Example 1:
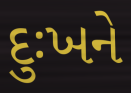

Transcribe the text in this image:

દુઃખને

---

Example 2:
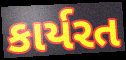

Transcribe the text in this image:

કાર્યરત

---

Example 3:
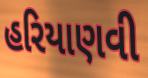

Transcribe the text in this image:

હરિયાણવી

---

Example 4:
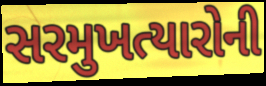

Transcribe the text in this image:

સરમુખત્યારોની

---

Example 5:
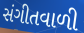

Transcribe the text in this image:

સંગીતવાળી